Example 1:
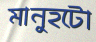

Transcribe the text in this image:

মানুহটো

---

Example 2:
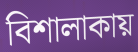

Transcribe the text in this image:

বিশালাকায়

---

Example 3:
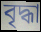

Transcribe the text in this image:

বৃদ্ধা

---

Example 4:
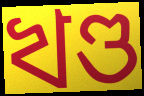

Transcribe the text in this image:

খণ্ড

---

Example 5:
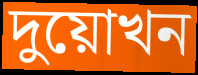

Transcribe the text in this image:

দুয়োখন